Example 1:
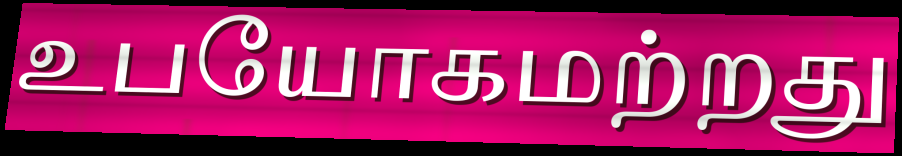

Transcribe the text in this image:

உபயோகமற்றது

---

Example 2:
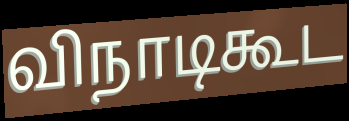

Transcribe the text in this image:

விநாடிகூட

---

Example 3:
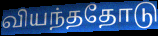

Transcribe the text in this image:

வியந்ததோடு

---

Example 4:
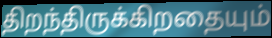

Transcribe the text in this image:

திறந்திருக்கிறதையும்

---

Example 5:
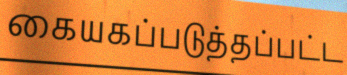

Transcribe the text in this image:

கையகப்படுத்தப்பட்ட